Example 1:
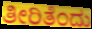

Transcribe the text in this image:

ತೀರಿತೆಂದು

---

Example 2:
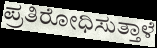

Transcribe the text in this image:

ಪ್ರತಿರೋಧಿಸುತ್ತಾಳೆ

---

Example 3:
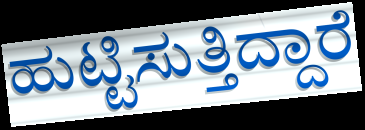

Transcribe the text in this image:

ಹುಟ್ಟಿಸುತ್ತಿದ್ದಾರೆ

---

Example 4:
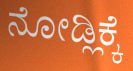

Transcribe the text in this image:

ನೋಡ್ಲಿಕ್ಕೆ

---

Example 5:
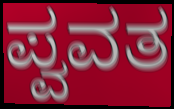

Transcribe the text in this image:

ಪ್ವವತ